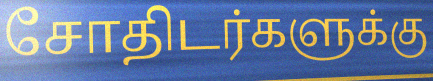
சோதிடர்களுக்கு